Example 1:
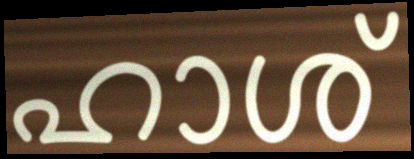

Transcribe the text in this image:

ഹാശ്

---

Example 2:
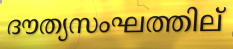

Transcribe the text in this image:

ദൗത്യസംഘത്തില്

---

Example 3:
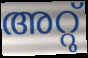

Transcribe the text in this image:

അറ്റു്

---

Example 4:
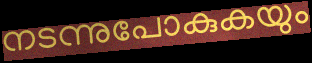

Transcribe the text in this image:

നടന്നുപോകുകയും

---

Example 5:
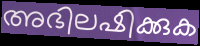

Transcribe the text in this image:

അഭിലഷിക്കുക